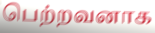
பெற்றவனாக